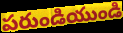
పరుండియుండి